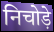
निचोड़े